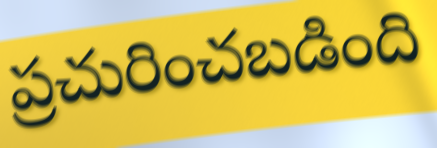
ప్రచురించబడింది